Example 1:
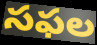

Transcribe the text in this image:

సఫల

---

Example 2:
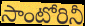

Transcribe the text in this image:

సాంటోరినీ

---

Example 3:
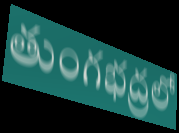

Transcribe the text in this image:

తుంగభద్రలో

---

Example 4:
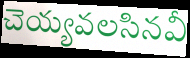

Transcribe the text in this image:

చెయ్యవలసినవీ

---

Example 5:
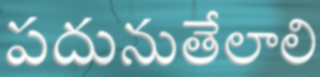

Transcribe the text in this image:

పదునుతేలాలి